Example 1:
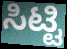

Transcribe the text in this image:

ಸಿಟ್ಟಿ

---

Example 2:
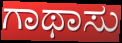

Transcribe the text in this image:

ಗಾಥಾಸು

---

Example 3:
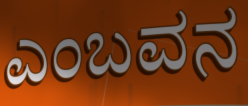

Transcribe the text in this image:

ಎಂಬವನ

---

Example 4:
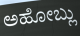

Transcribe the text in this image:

ಅಹೋಬ್ಲು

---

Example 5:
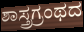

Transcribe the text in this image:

ಶಾಸ್ತ್ರಗ್ರಂಥದ